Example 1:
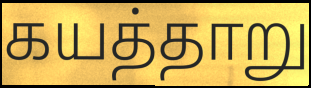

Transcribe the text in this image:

கயத்தாறு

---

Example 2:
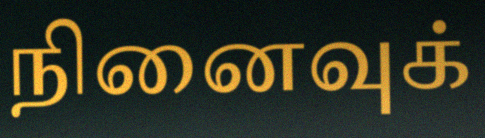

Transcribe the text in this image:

நினைவுக்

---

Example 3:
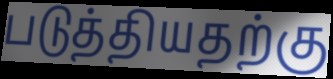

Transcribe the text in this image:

படுத்தியதற்கு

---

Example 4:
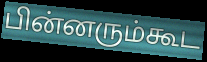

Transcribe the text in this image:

பின்னரும்கூட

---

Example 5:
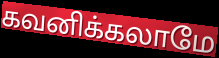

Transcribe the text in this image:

கவனிக்கலாமே